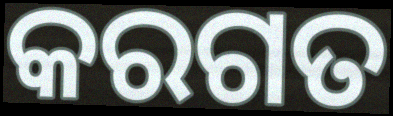
କରଗତ